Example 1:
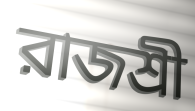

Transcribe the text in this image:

রাজশ্রী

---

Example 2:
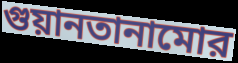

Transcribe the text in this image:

গুয়ানতানামোর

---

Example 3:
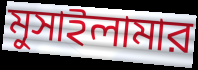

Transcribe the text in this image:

মুসাইলামার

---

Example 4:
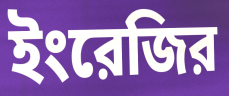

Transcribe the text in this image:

ইংরেজির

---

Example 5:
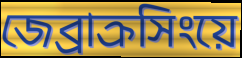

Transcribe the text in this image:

জেব্রাক্রসিংয়ে